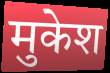
मुकेश